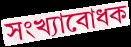
সংখ্যাবোধক